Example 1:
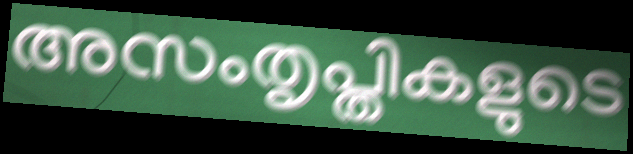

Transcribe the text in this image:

അസംതൃപ്തികളുടെ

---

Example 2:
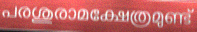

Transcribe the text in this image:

പരശുരാമക്ഷേത്രമുണ്ട്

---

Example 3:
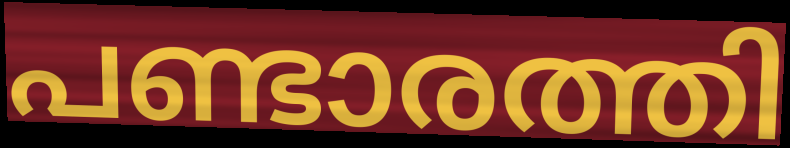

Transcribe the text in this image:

പണ്ടാരത്തി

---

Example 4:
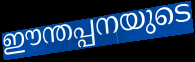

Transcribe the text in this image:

ഈന്തപ്പനയുടെ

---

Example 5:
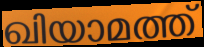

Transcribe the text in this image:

ഖിയാമത്ത്